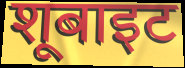
शूबाइट